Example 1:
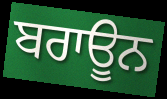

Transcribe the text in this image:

ਬਰਾਊਨ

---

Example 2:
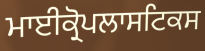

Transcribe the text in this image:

ਮਾਈਕ੍ਰੋਪਲਾਸਟਿਕਸ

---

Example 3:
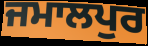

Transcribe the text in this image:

ਜਮਾਲਪੁਰ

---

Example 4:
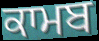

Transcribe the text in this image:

ਕਾਮਬ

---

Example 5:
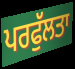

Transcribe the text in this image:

ਪਰਫੁੱਲਤਾ